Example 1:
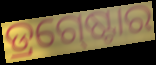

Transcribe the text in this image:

ଡ୍ରଗ୍‍ଷ୍ଟୋର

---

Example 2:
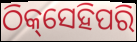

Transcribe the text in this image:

ଠିକ୍‌ସେହିପରି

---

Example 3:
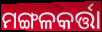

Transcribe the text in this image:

ମଙ୍ଗଳକର୍ତ୍ତା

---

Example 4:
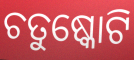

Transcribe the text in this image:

ଚତୁଷ୍କୋଟି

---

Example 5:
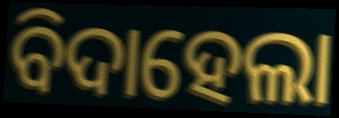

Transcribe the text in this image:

ବିଦାହେଲା